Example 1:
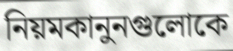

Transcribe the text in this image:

নিয়মকানুনগুলোকে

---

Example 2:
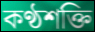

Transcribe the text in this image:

কণ্ঠশক্তি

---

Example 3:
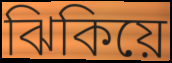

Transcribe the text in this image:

ঝিকিয়ে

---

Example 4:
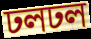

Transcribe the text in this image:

ঢলঢল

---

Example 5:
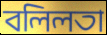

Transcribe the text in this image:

বলিলতা